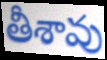
తీశావు